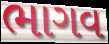
ભાગવ